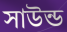
সাউন্ড